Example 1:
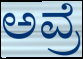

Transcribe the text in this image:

ಅವ್ರೆ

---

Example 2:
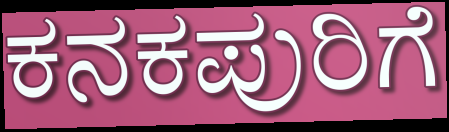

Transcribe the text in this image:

ಕನಕಪುರಿಗೆ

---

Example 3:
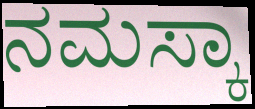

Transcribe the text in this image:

ನಮಸ್ಕಾ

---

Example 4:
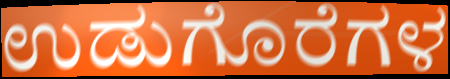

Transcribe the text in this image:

ಉಡುಗೊರೆಗಳ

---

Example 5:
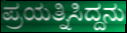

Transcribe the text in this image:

ಪ್ರಯತ್ನಿಸಿದ್ದನು